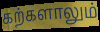
கற்களாலும்